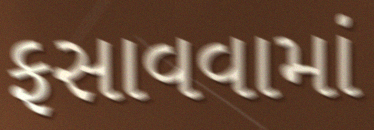
ફસાવવામાં